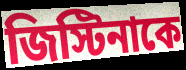
জিস্টিনাকে